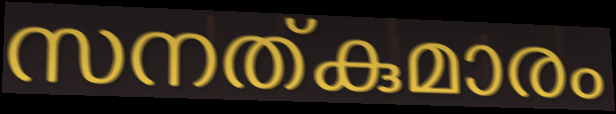
സനത്കുമാരം